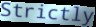
Strictly